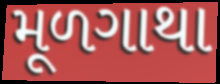
મૂળગાથા